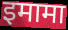
इमामा